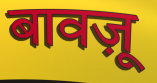
बावज़ू